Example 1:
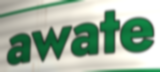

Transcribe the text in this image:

awate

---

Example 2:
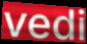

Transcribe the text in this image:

vedi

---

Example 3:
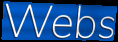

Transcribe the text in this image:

Webs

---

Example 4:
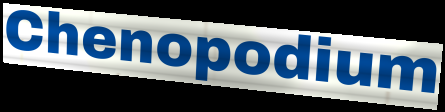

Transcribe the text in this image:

Chenopodium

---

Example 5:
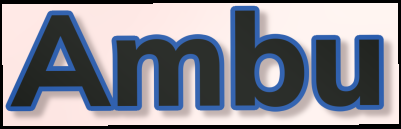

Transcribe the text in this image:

Ambu